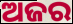
ଅଜର